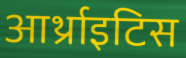
आर्थ्राइटिस